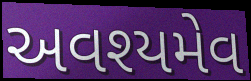
અવશ્યમેવ